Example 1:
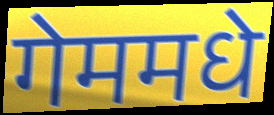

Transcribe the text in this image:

गेममधे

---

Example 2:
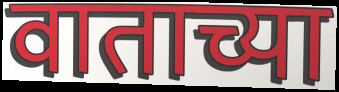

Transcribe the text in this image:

वाताच्या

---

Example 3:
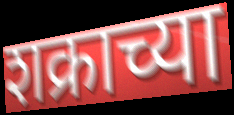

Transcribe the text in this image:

शक्राच्या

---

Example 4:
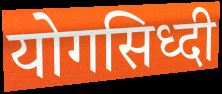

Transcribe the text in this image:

योगसिध्दी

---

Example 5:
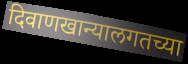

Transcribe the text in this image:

दिवाणखान्यालगतच्या